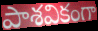
పాశవికంగా